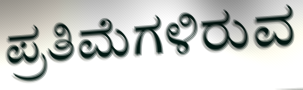
ಪ್ರತಿಮೆಗಳಿರುವ